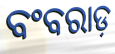
ବଂବରାଡ଼